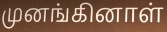
முனங்கினாள்